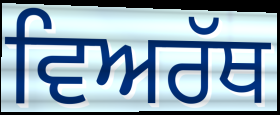
ਵਿਅਰੱਥ